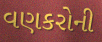
વણકરોની